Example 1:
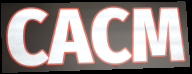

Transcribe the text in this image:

CACM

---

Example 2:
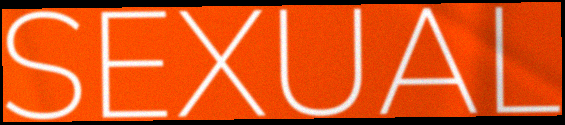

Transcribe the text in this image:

SEXUAL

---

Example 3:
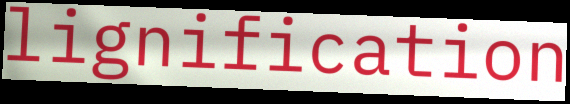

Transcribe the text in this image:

lignification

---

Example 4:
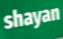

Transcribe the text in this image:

shayan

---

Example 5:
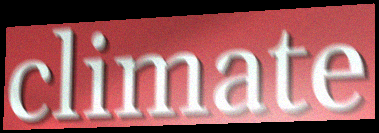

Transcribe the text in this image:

climate